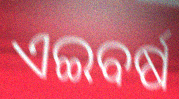
ଏଇବର୍ଷ